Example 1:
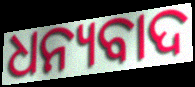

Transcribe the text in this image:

ଧନ୍ୟବାଦ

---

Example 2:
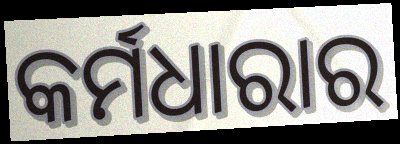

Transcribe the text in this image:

କର୍ମଧାରାର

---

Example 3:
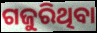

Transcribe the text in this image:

ଗଜୁରିଥିବା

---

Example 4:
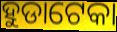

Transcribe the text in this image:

ହୁଡାଟେକା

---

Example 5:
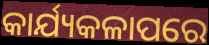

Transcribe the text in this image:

କାର୍ଯ୍ୟକଳାପରେ